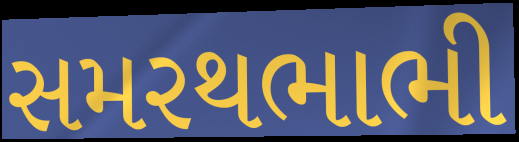
સમરથભાભી